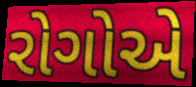
રોગોએ